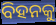
ବିହନକୁ